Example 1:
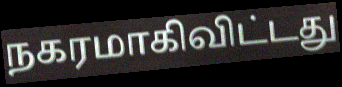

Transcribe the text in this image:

நகரமாகிவிட்டது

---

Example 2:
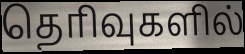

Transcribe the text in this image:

தெரிவுகளில்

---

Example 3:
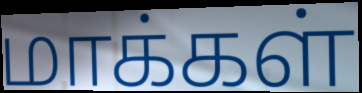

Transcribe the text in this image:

மாக்கள்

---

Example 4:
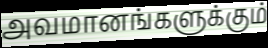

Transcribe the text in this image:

அவமானங்களுக்கும்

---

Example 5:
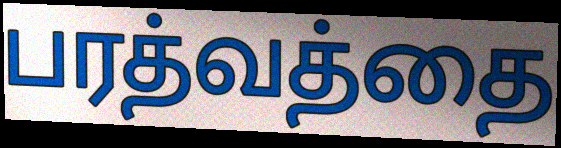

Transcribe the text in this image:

பரத்வத்தை